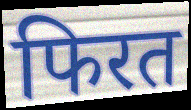
फिरत